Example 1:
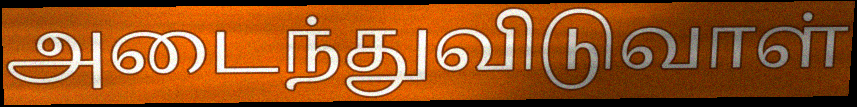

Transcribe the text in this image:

அடைந்துவிடுவாள்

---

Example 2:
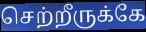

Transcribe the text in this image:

செற்றீருக்கே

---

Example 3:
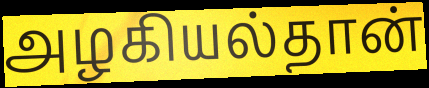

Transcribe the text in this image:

அழகியல்தான்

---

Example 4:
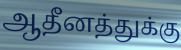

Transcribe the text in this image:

ஆதீனத்துக்கு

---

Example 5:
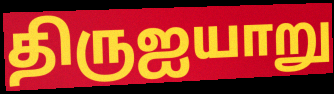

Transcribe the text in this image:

திருஐயாறு